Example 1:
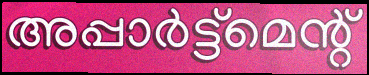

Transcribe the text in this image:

അപ്പാർട്ട്മെന്റ്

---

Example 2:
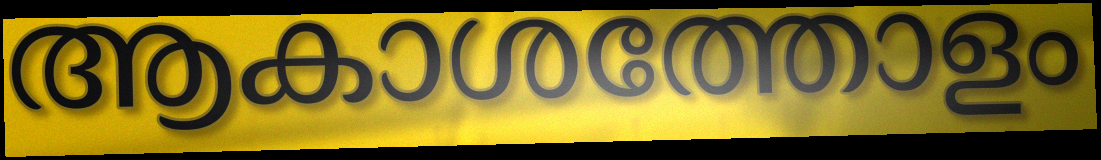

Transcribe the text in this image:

ആകാശത്തോളം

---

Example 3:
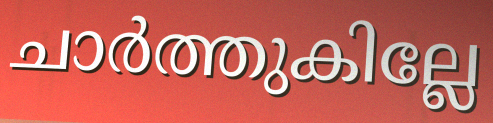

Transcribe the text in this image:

ചാർത്തുകില്ലേ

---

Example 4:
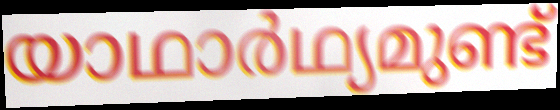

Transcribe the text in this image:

യാഥാർഥ്യമുണ്ട്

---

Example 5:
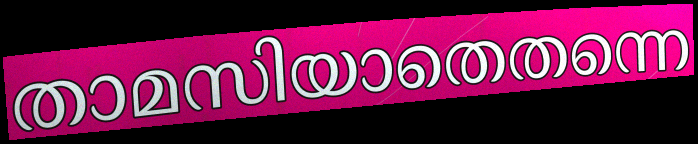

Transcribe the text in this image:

താമസിയാതെതന്നെ